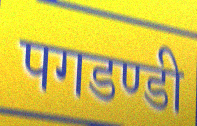
पगडण्डी